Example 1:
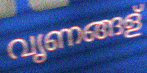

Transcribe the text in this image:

വൃണങ്ങള്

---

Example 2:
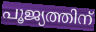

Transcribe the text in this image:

പൂജ്യത്തിന്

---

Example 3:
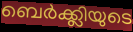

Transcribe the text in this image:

ബെർക്ക്ലിയുടെ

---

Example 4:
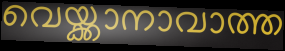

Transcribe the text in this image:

വെയ്ക്കാനാവാത്ത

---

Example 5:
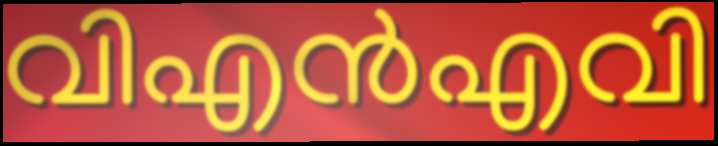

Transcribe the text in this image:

വിഎൻഎവി